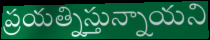
ప్రయత్నిస్తున్నాయని